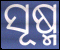
ସୂଷ୍ମ